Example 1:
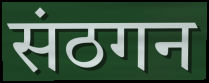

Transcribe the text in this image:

संठगन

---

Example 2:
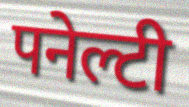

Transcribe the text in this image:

पनेल्टी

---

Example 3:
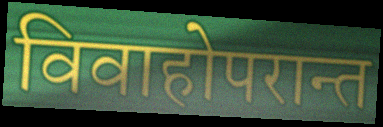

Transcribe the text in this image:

विवाहोपरान्त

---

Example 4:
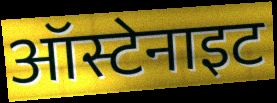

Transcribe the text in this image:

ऑस्टेनाइट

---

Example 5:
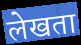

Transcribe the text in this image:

लेखता